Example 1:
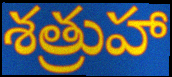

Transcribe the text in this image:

శత్రుహా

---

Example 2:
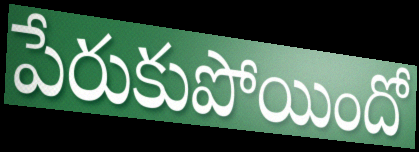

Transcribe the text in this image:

పేరుకుపోయిందో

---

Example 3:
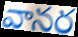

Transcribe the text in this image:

వానర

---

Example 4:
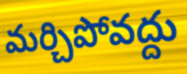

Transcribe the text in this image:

మర్చిపోవద్దు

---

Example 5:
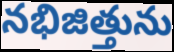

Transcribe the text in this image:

నభిజిత్తును